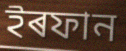
ইৰফান